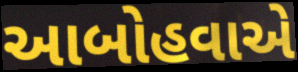
આબોહવાએ